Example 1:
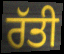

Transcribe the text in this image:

ਰੱਤੀ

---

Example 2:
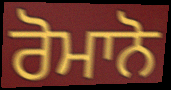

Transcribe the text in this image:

ਰੋਮਾਨੋ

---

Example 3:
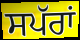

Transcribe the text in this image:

ਸਪੱਰਾਂ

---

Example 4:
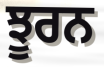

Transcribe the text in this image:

ਝੂਰਨ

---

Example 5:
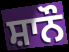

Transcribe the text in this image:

ਸ਼ਾਨੌ